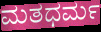
ಮತಧರ್ಮ